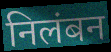
निलंबन